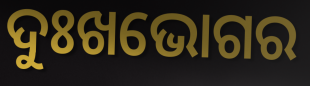
ଦୁଃଖଭୋଗର